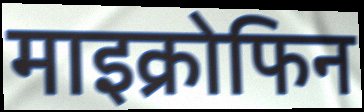
माइक्रोफिन